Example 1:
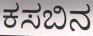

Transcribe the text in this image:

ಕಸಬಿನ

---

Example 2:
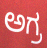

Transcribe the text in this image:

ಅಗ್ರ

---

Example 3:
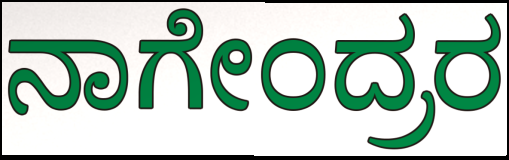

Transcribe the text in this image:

ನಾಗೇಂದ್ರರ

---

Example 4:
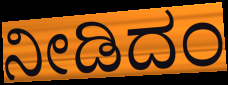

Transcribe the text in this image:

ನೀಡಿದಂ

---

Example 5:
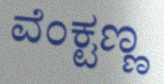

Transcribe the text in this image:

ವೆಂಕ್ಟಣ್ಣ